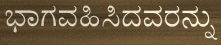
ಭಾಗವಹಿಸಿದವರನ್ನು